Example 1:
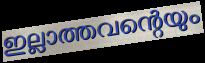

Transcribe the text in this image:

ഇല്ലാത്തവന്റെയും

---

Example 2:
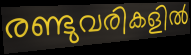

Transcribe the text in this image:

രണ്ടുവരികളിൽ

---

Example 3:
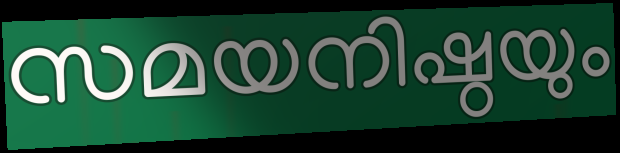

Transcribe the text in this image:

സമയനിഷ്ഠയും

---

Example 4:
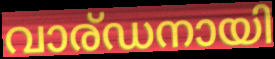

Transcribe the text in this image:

വാര്ഡനായി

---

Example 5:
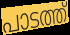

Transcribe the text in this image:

പാടത്ത്